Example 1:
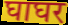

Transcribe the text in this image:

घाघर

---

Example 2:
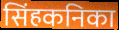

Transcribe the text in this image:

सिंहकनिका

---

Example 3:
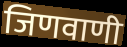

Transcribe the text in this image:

जिणवाणी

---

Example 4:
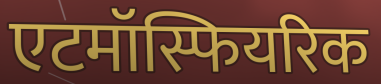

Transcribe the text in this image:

एटमॉस्फियरिक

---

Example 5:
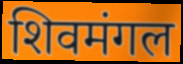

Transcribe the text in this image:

शिवमंगल